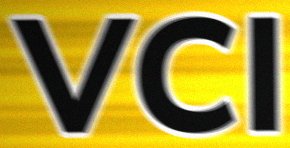
VCI